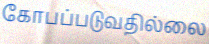
கோபப்படுவதில்லை